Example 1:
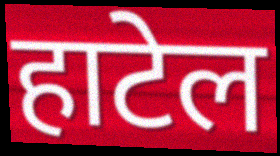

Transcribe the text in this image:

हाटेल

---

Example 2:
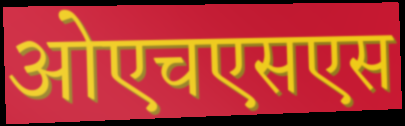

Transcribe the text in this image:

ओएचएसएस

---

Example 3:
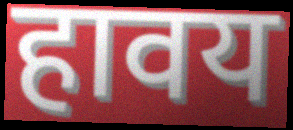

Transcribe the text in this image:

हावय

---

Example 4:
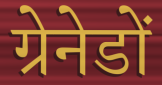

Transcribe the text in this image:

ग्रेनेडों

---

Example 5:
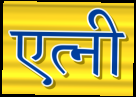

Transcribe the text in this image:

एत्नी